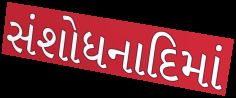
સંશોધનાદિમાં